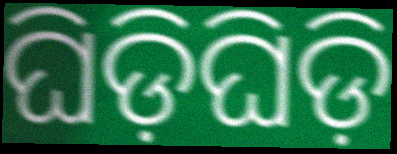
ଘିଡ଼ିଘିଡ଼ି